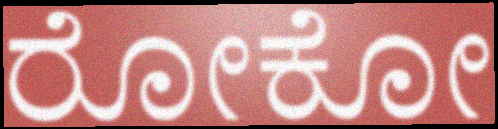
ರೋಕೋ